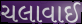
ચલાવાઈ